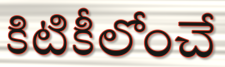
కిటికీలోంచే